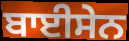
ਬਾਈਸੇਨ